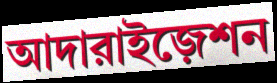
আদারাইজ়েশন